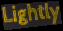
Lightly